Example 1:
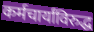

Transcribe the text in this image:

कर्मचार्यांविरुद्ध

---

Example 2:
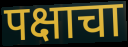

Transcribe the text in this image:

पक्षाचा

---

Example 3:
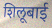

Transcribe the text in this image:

शिलूबाई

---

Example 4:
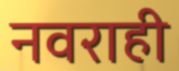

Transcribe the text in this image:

नवराही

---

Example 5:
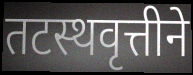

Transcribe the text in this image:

तटस्थवृत्तीने